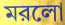
মরলো